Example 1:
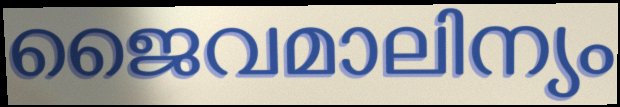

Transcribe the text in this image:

ജൈവമാലിന്യം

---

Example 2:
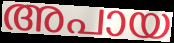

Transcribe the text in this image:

അപായ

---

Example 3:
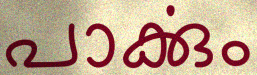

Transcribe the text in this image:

പാൎക്കും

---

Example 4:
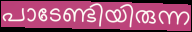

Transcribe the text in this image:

പാടേണ്ടിയിരുന്ന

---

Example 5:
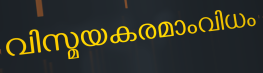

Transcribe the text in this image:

വിസ്മയകരമാംവിധം